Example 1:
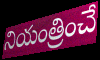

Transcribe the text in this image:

నియంత్రించే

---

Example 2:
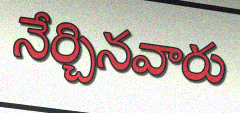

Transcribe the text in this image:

నేర్చినవారు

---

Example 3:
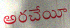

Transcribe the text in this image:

అరచేయీ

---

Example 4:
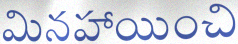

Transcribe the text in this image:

మినహాయించి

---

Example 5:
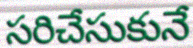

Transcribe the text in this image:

సరిచేసుకునే